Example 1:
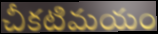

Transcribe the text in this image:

చీకటిమయం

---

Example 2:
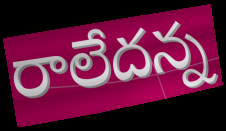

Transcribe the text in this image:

రాలేదన్న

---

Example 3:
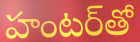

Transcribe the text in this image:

హంటర్‌తో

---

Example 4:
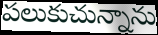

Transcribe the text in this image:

పలుకుచున్నాను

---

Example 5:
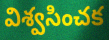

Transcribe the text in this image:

విశ్వసించక